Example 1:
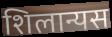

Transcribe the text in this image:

शिलान्यस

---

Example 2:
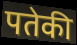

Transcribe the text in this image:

पतेकी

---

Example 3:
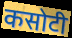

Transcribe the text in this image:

कसोटी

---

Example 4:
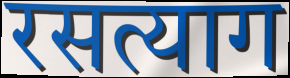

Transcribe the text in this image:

रसत्याग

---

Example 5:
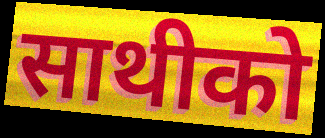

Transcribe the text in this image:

साथीको